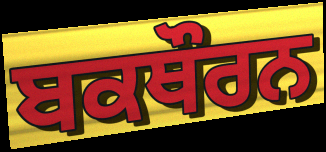
ਬਕਥੌਰਨ